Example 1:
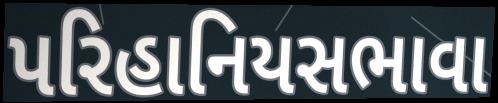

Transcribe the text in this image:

પરિહાનિયસભાવા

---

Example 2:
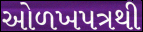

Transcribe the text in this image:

ઓળખપત્રથી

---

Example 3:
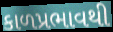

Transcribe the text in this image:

કાળપ્રભાવથી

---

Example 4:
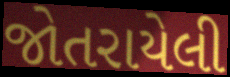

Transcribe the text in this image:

જોતરાયેલી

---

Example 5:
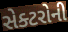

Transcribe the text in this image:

સેક્ટરોની